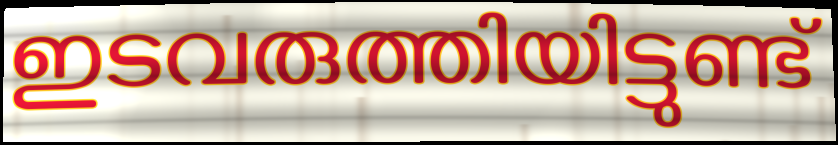
ഇടവരുത്തിയിട്ടുണ്ട്